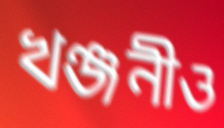
খঞ্জনীও